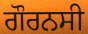
ਗੌਰਨਸੀ